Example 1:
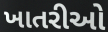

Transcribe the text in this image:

ખાતરીઓ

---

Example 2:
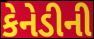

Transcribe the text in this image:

કેનેડીની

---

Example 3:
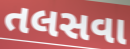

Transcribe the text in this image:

તલસવા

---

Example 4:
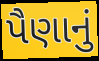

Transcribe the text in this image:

પૈણાનું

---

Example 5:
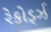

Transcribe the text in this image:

રેકોર્ડ્ઝ